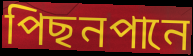
পিছনপানে